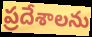
ప్రదేశాలను